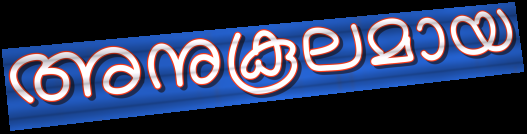
അനുകൂലമായ